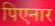
पिएनार